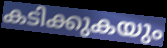
കടിക്കുകയും